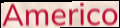
Americo